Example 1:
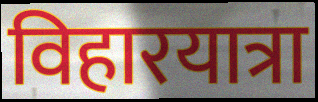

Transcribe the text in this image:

विहारयात्रा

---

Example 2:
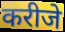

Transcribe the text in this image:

करीजे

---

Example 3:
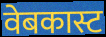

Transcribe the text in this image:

वेबकास्ट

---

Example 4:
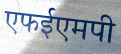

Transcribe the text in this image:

एफईएमपी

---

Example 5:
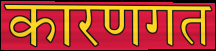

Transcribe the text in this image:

कारणगत